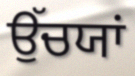
ਉੱਚਯਾਂ